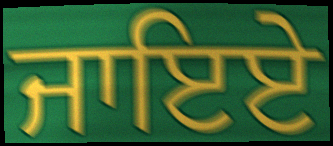
ਜਾਇਏ